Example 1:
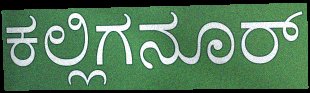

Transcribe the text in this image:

ಕಲ್ಲಿಗನೂರ್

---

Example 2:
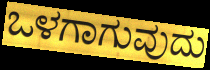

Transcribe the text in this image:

ಒಳಗಾಗುವುದು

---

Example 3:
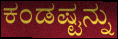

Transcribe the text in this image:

ಕಂಡಷ್ಟನ್ನು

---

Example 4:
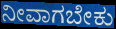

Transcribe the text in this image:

ನೀವಾಗಬೇಕು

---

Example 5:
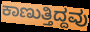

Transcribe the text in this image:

ಕಾಣುತ್ತಿದ್ದವು